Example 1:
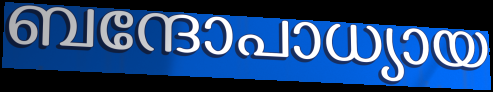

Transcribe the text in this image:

ബന്ദോപാധ്യായ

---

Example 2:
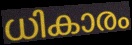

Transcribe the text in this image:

ധികാരം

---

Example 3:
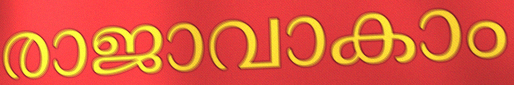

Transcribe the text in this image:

രാജാവാകാം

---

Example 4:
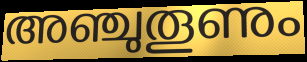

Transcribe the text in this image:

അഞ്ചുതൂണും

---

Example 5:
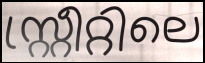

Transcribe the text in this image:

സ്റ്റ്രീറ്റിലെ